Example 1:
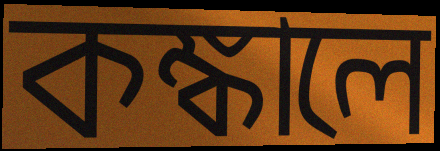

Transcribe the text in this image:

কঙ্কালে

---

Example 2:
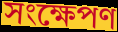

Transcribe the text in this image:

সংক্ষেপণ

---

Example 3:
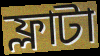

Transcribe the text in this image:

ফ্লাটা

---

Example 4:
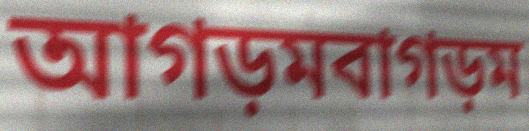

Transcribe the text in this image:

আগড়মবাগড়ম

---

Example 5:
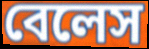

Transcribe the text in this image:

বেলেস